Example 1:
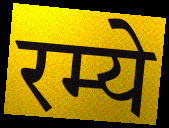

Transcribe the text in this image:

रम्ये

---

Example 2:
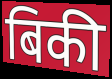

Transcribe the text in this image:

बिकी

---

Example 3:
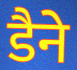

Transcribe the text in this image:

डैने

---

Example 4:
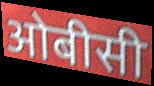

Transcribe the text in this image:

ओबीसी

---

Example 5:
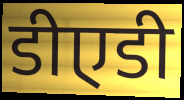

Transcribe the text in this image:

डीएडी